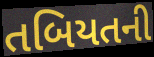
તબિયતની